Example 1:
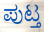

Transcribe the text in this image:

ಪುಟ್ತ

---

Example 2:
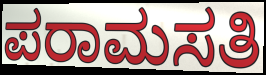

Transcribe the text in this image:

ಪರಾಮಸತಿ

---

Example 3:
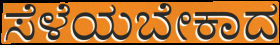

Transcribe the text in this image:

ಸೆಳೆಯಬೇಕಾದ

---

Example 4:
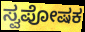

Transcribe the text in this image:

ಸ್ವಪೋಷಕ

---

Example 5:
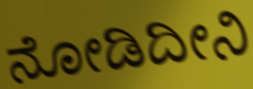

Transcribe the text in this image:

ನೋಡಿದೀನಿ